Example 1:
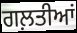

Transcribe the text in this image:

ਗਲ਼ਤੀਆਂ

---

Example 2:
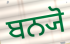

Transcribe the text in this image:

ਬਨ੍ਯੋ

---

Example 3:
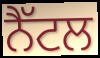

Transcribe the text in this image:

ਨੈੱਟਲ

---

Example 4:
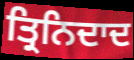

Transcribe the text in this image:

ਤ੍ਰਿਨਿਦਾਦ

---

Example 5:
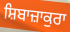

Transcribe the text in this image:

ਸ਼ਿਬਾਜ਼ਾਕੁਰਾ